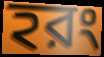
হরং